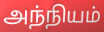
அந்நியம்